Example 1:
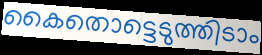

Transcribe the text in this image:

കൈതൊട്ടെടുത്തിടാം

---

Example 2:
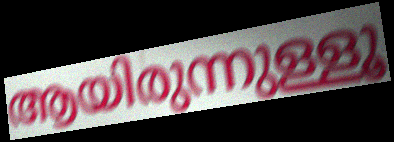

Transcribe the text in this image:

ആയിരുന്നുള്ളൂ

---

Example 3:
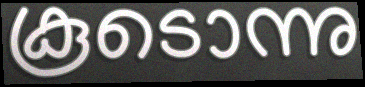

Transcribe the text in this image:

കൂടൊന്നു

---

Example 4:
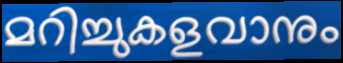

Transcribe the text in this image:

മറിച്ചുകളവാനും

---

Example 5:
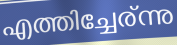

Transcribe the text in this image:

എത്തിച്ചേര്ന്നു